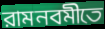
রামনবমীতে